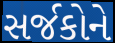
સર્જકોને